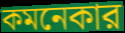
কমনেকার